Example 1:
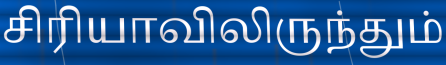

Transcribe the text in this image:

சிரியாவிலிருந்தும்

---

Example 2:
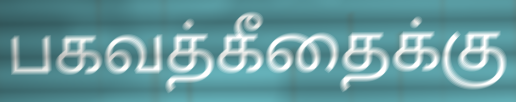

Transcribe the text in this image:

பகவத்கீதைக்கு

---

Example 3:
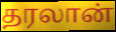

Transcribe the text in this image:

தரலான்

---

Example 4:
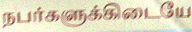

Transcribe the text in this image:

நபர்களுக்கிடையே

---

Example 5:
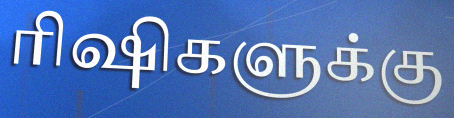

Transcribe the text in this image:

ரிஷிகளுக்கு